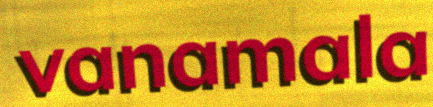
vanamala